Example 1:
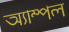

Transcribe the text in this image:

অ্যাম্পল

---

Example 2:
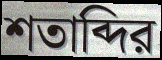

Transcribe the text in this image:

শতাব্দির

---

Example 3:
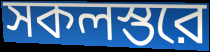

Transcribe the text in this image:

সকলস্তরে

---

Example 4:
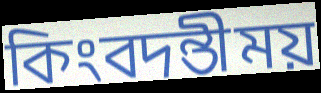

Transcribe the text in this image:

কিংবদন্তীময়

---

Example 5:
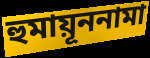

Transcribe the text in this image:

হুমায়ূননামা